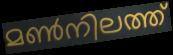
മൺനിലത്ത്